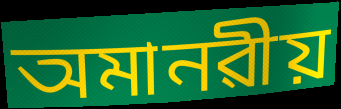
অমানৱীয়